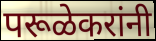
परूळेकरांनी